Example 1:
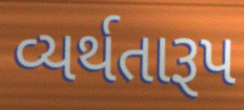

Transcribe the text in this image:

વ્યર્થતારૂપ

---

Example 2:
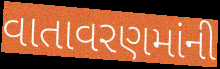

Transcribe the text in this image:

વાતાવરણમાંની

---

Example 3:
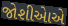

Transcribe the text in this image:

જોશીએાએ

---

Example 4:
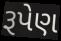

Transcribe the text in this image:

રૂપેણ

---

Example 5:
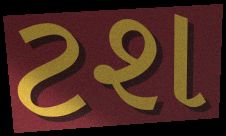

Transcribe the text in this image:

ટશ